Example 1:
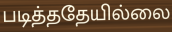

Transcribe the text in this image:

படித்ததேயில்லை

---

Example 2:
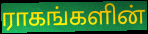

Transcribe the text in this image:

ராகங்களின்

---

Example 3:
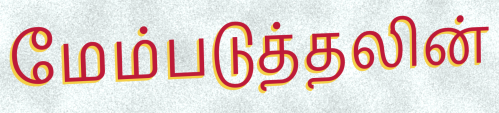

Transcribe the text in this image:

மேம்படுத்தலின்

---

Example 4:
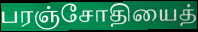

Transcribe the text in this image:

பரஞ்சோதியைத்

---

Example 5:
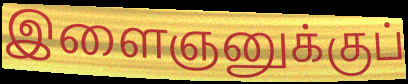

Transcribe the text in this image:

இளைஞனுக்குப்